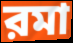
রমা